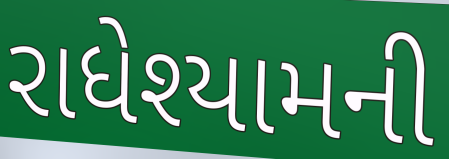
રાધેશ્યામની